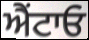
ਐਂਟਾਓ